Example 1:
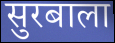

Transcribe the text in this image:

सुरबाला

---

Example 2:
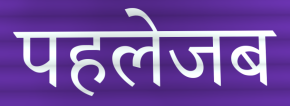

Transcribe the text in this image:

पहलेजब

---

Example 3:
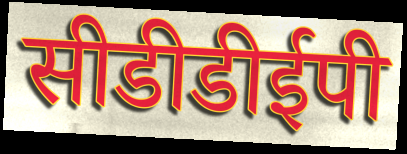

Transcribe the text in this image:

सीडीडीईपी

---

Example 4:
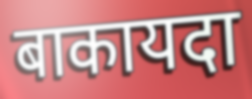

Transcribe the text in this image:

बाकायदा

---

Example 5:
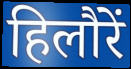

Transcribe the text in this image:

हिलौरें